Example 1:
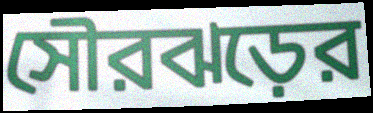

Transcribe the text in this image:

সৌরঝড়ের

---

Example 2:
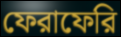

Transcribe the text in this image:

ফেরাফেরি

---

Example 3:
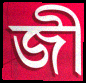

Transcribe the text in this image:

জী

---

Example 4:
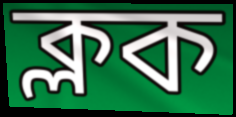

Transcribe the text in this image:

ক্লক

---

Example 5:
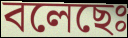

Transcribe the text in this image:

বলেছেঃ